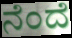
ನೆಂದೆ